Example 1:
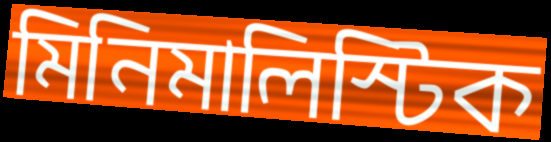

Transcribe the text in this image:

মিনিমালিস্টিক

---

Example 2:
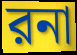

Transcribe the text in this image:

রনা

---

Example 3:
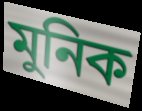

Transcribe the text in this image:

মুনিক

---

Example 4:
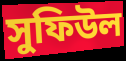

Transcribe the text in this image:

সুফিউল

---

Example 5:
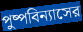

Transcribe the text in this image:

পুষ্পবিন্যাসের